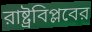
রাষ্ট্রবিপ্লবের